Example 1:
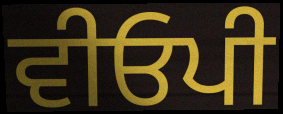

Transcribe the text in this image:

ਵੀਓਪੀ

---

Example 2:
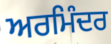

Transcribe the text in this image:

ਅਰਮਿੰਦਰ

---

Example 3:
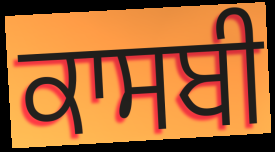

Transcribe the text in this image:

ਕਾਸਬੀ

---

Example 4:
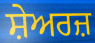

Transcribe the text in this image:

ਸ਼ੇਅਰਜ਼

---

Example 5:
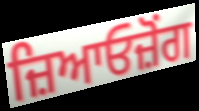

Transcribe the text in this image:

ਜ਼ਿਆਓਜ਼ੋਂਗ